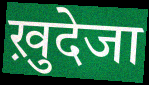
ख़ुदेजा